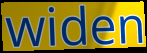
widen